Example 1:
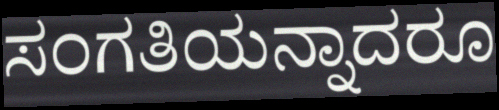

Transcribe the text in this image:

ಸಂಗತಿಯನ್ನಾದರೂ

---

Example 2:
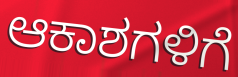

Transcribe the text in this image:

ಆಕಾಶಗಳಿಗೆ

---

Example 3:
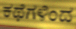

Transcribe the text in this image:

ಕಥೆಗಳಿಂದ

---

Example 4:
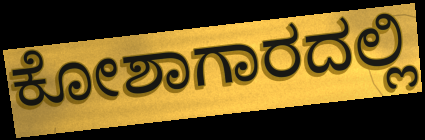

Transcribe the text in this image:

ಕೋಶಾಗಾರದಲ್ಲಿ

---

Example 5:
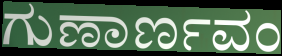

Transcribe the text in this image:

ಗುಣಾರ್ಣವಂ